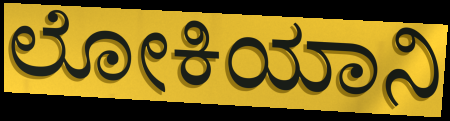
ಲೋಕಿಯಾನಿ